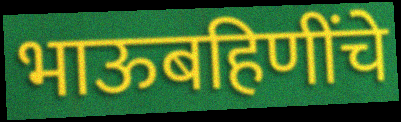
भाऊबहिणींचे